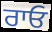
ਰਾਓ